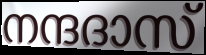
നന്ദദാസ്